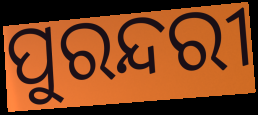
ପୁରନ୍ଦରୀ